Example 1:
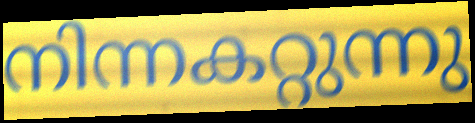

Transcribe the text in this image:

നിന്നകറ്റുന്നു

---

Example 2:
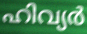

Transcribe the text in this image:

ഹിവ്യർ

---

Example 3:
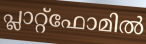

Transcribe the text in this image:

പ്ലാറ്റ്ഫോമിൽ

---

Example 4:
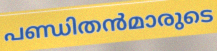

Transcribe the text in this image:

പണ്ഡിതൻമാരുടെ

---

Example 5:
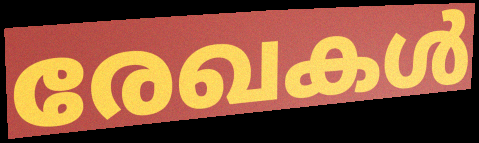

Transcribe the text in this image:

രേഖകൾ